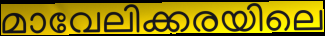
മാവേലിക്കരയിലെ